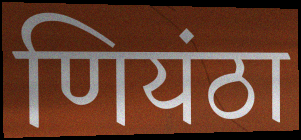
णियंठा